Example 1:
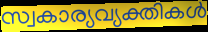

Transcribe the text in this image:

സ്വകാര്യവ്യക്തികൾ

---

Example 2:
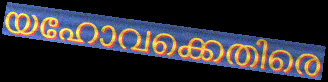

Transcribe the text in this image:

യഹോവക്കെതിരെ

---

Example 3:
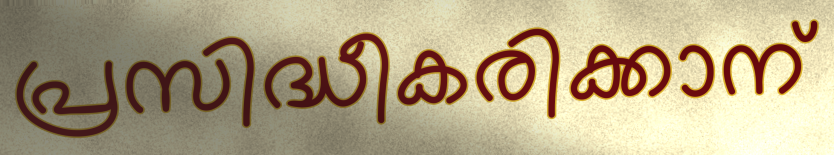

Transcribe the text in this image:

പ്രസിദ്ധീകരിക്കാന്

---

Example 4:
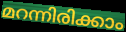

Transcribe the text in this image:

മറന്നിരിക്കാം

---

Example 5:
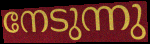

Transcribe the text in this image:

നേടുന്നു